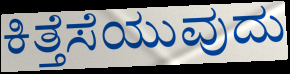
ಕಿತ್ತೆಸೆಯುವುದು